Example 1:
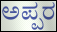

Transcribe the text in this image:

ಅಪ್ಪರ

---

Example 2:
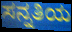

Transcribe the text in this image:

ಸನ್ನತಿಯ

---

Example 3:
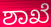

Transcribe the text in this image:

ಶಾಖೆ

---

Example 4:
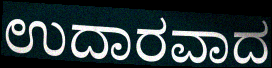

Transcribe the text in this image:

ಉದಾರವಾದ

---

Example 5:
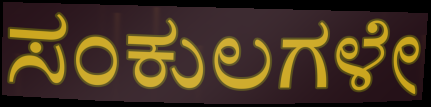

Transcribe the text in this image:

ಸಂಕುಲಗಳೇ